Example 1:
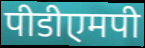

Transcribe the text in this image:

पीडीएमपी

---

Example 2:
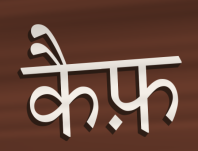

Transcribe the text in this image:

कैफ़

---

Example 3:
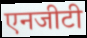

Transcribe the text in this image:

एनजीटी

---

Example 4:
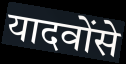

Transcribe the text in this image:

यादवोंसे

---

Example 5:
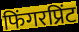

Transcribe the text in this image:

फिंगरप्रिंट